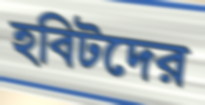
হবিটদের